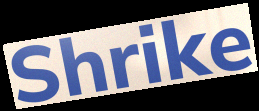
Shrike